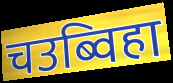
चउब्विहा